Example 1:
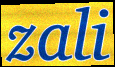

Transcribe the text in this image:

zali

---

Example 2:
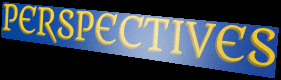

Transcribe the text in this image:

PERSPECTIVES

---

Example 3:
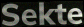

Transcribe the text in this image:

Sekte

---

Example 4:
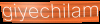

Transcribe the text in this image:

giyechilam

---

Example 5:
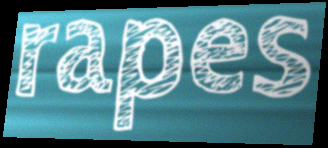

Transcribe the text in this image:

rapes